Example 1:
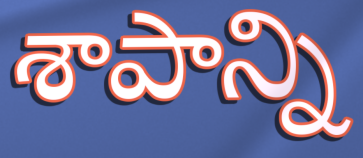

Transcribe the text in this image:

శాపాన్ని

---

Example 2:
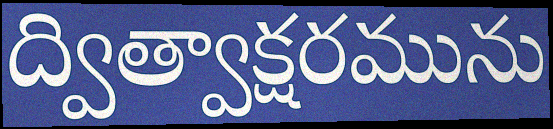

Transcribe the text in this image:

ద్విత్వాక్షరమును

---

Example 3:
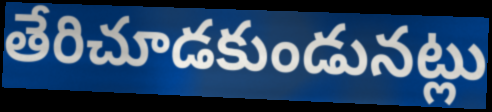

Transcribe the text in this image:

తేరిచూడకుండునట్లు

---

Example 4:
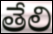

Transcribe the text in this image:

తేలి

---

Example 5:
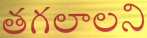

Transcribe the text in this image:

తగలాలని